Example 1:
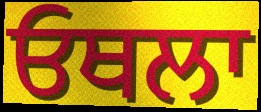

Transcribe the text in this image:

ਓਥਲਾ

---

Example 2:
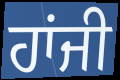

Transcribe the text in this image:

ਹਾਂਜੀ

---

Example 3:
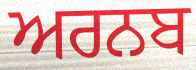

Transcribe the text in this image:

ਅਰਨਬ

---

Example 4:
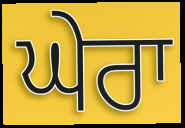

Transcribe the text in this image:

ਘੇਰਾ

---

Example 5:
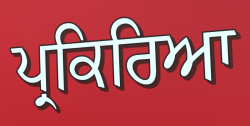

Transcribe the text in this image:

ਪ੍ਰਕਿਰਿਆ